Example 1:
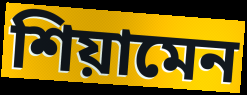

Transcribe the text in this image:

শিয়ামেন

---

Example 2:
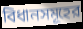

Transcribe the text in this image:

বিধানসমূহের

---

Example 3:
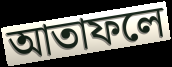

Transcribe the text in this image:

আতাফলে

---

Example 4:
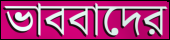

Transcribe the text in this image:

ভাববাদের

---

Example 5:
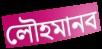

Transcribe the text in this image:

লৌহমানব